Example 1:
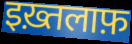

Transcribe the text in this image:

इख़्तलाफ़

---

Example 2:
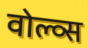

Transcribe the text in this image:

वोल्व्स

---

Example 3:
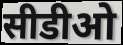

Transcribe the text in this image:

सीडीओ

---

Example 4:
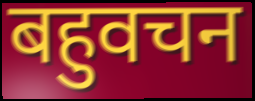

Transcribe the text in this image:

बहुवचन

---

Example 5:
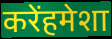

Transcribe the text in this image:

करेंहमेशा